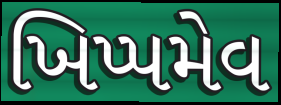
ખિપ્પમેવ